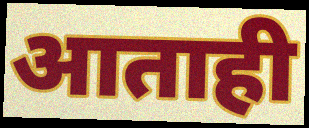
आताही